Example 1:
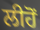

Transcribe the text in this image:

ਲੀਹੋਂ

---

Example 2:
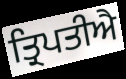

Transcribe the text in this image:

ਤ੍ਰਿਪਤੀਐ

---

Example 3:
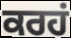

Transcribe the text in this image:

ਕਰਹਂ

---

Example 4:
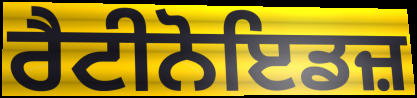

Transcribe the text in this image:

ਰੈਟੀਨੋਇਡਜ਼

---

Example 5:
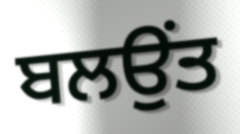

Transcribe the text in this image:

ਬਲਉਂਤ